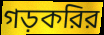
গড়করির